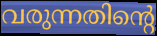
വരുന്നതിന്റെ